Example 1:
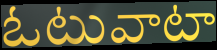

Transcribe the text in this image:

ఓటువాటా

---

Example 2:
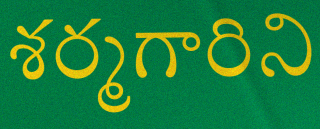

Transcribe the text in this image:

శర్మగారిని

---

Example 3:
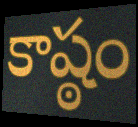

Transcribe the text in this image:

కాష్ఠం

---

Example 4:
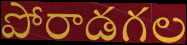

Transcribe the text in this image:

పోరాడగల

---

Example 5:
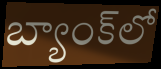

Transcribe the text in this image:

బ్యాంక్‌లో